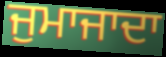
ਜੁਮਾਜਾਦਾ